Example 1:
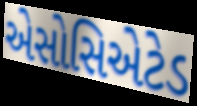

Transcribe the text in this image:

એસોસિએટેડ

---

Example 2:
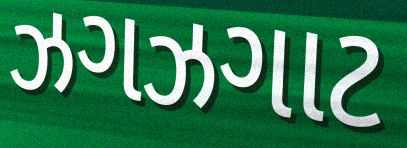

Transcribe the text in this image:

ઝગઝગાટ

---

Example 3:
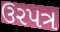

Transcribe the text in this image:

ઉરપત્ર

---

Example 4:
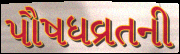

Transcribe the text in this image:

પૌષધવ્રતની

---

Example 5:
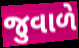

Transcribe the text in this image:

જુવાળે